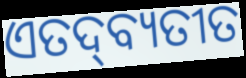
ଏତଦ୍‍ବ୍ୟତୀତ